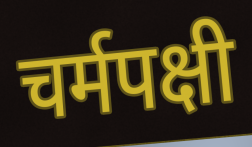
चर्मपक्षी